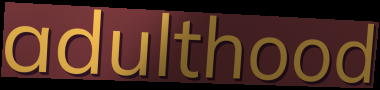
adulthood